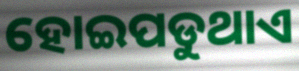
ହୋଇପଡୁଥାଏ